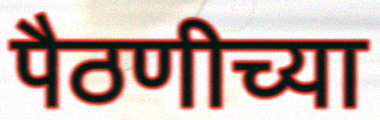
पैठणीच्या